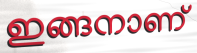
ഇങ്ങനാണ്